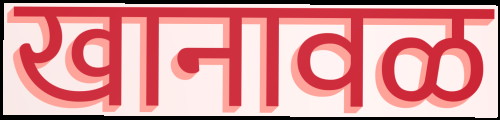
खानावळ